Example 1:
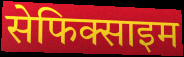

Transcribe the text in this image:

सेफिक्साइम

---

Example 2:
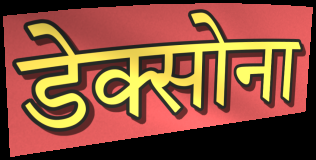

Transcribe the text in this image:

डेक्सोना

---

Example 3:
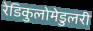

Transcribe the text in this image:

रेडिकुलोमेडुलरी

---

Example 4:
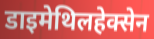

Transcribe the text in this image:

डाइमेथिलहेक्सेन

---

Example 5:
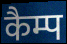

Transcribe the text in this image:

कैम्प